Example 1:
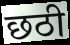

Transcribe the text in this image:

छठी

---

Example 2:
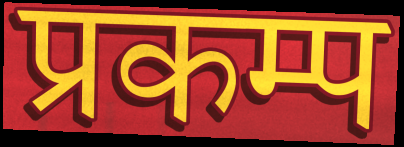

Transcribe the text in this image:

प्रकम्प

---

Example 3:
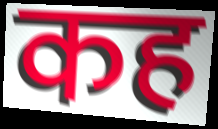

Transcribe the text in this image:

कह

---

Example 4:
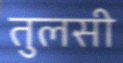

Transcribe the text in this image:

तुलसी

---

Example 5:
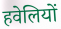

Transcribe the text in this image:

हवेलियों